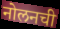
नोलनची